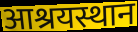
आश्रयस्थान